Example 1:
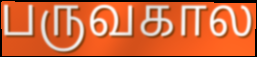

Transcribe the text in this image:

பருவகால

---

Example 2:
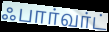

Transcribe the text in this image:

ஃபார்வர்ட்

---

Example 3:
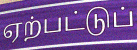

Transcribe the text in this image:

ஏற்பட்டுப்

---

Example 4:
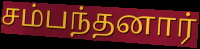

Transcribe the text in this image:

சம்பந்தனார்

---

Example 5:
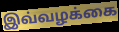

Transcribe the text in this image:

இவ்வழக்கை